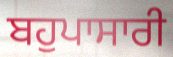
ਬਹੁਪਾਸਾਰੀ